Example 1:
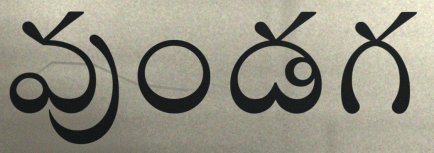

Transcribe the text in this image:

వుండగ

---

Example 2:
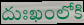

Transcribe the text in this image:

దుఃఖంలోకి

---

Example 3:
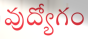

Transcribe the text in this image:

వుద్యోగం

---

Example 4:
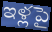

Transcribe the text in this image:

ఇళ్లపై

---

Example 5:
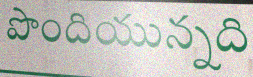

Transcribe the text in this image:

పొందియున్నది